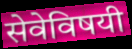
सेवेविषयी